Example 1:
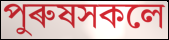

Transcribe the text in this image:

পুৰুষসকলে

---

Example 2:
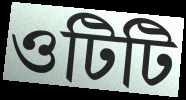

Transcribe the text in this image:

ওটিটি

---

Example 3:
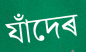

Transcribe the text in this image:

যাঁদেৰ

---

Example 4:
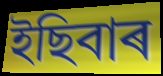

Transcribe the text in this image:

ইছিবাৰ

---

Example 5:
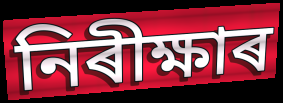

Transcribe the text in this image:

নিৰীক্ষাৰ